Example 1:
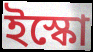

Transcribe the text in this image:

ইস্কো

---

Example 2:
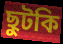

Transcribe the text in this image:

ছুটকি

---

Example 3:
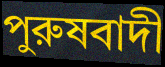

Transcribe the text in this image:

পুরুষবাদী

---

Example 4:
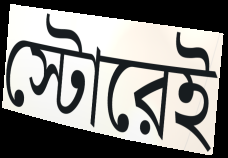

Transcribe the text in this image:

স্টোরেই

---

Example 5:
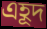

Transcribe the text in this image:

এহূদ